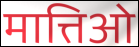
मात्तिओ